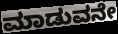
ಮಾಡುವನೇ